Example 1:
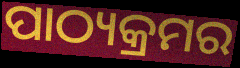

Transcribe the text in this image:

ପାଠ୍ୟକ୍ରମର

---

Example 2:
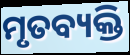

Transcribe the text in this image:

ମୃତବ୍ୟକ୍ତି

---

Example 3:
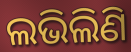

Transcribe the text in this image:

ଲଭିଲିଣି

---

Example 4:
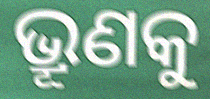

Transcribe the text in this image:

ଭ୍ରୂଣକୁ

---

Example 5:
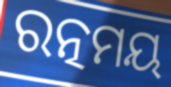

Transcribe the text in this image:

ରତ୍ନମୟ